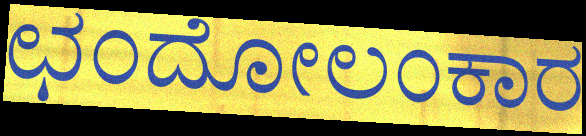
ಛಂದೋಲಂಕಾರ